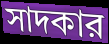
সাদকার